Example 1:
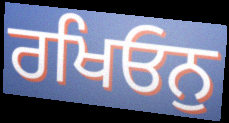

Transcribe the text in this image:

ਰਖਿਓਨੁ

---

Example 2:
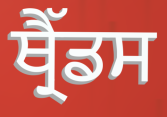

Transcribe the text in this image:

ਥ੍ਰੈੱਡਸ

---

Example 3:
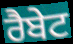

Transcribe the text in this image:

ਰੈਬੇਟ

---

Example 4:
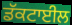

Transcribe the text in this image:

ਡੱਕਟਾਈਲ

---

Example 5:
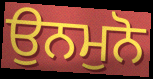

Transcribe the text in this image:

ਉਨਮੁਨੋ